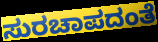
ಸುರಚಾಪದಂತೆ